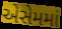
એસેમમાં